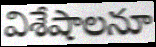
విశేషాలనూ